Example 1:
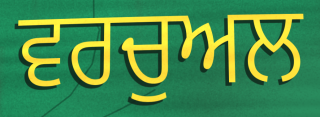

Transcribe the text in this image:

ਵਰਚੁਅਲ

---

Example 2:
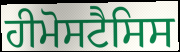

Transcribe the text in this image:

ਹੀਮੋਸਟੈਸਿਸ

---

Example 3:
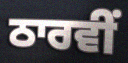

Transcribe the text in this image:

ਠਾਰਵੀਂ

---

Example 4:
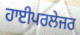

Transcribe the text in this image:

ਹਾਈਪਰਲੇਜਰ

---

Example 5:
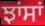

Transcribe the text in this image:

ਝਾਂਸਾਂ